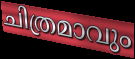
ചിത്രമാവും